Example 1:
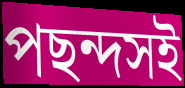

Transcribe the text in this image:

পছন্দসই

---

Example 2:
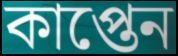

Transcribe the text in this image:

কাপ্তেন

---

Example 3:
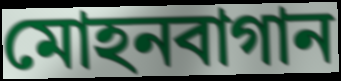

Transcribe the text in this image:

মোহনবাগান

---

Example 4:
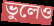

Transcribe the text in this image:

ভুলেও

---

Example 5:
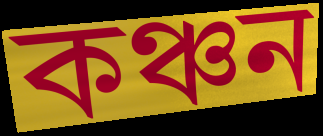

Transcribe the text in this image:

কঞ্চন